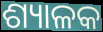
ଶ୍ୟାଳକ